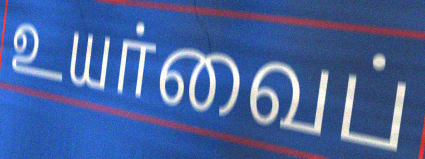
உயர்வைப்